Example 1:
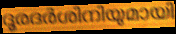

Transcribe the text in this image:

ദൂരദർശിനിയുമായി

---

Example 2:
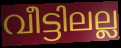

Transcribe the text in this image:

വീട്ടിലല്ല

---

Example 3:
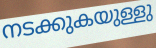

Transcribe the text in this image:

നടക്കുകയുള്ളു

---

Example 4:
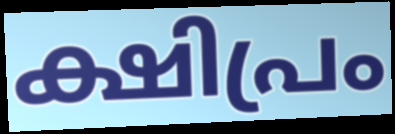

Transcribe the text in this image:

ക്ഷിപ്രം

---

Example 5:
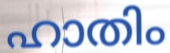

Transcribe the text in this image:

ഹാതിം